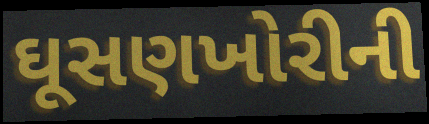
ઘૂસણખોરીની